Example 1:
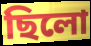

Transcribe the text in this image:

ছিলো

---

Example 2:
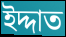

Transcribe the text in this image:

ইদ্দাত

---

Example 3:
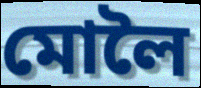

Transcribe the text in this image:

মোলৈ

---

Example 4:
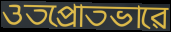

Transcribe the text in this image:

ওতপ্ৰোতভাৱে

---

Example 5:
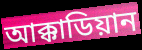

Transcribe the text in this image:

আক্কাডিয়ান